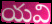
యవి